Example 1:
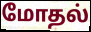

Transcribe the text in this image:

மோதல்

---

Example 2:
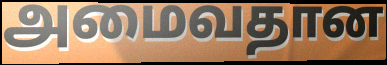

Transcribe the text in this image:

அமைவதான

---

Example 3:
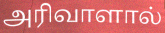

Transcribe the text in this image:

அரிவாளால்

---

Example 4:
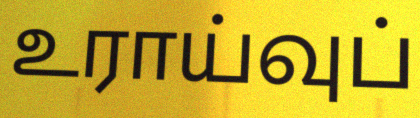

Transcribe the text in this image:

உராய்வுப்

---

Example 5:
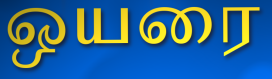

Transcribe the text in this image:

ஒயரை